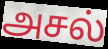
அசல்